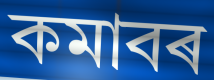
কমাবৰ